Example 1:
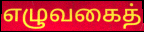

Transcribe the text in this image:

எழுவகைத்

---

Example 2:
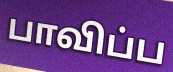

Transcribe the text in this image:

பாவிப்ப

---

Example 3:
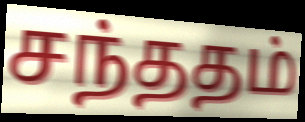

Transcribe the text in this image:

சந்ததம்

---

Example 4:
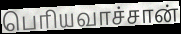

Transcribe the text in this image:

பெரியவாச்சான்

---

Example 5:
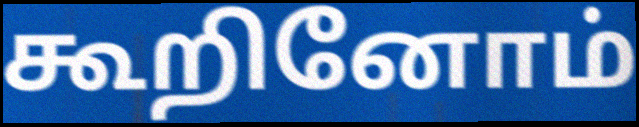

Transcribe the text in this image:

கூறினோம்